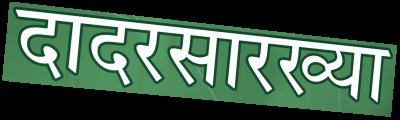
दादरसारख्या